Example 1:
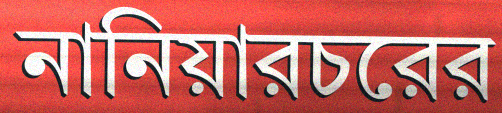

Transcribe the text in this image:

নানিয়ারচরের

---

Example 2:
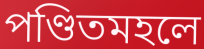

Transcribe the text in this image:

পণ্ডিতমহলে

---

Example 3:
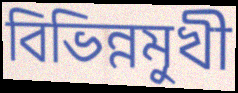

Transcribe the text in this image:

বিভিন্নমুখী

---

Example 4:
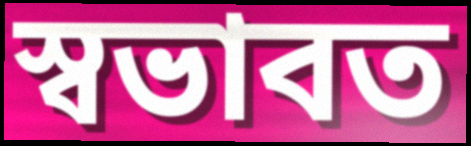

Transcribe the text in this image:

স্বভাবত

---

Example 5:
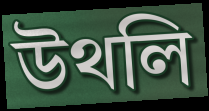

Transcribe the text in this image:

উথলি